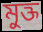
মুক্ত